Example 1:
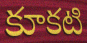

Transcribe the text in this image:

కూకటి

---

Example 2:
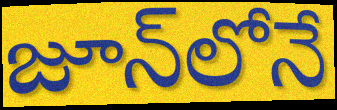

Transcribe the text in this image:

జూన్‌లోనే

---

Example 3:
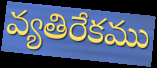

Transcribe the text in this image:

వ్యతిరేకము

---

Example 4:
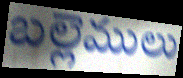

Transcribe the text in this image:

బల్లెములు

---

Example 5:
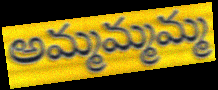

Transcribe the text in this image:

అమ్మమ్మమ్మ